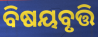
ବିଷୟବୃତ୍ତି